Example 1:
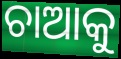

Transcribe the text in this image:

ଚାଆକୁ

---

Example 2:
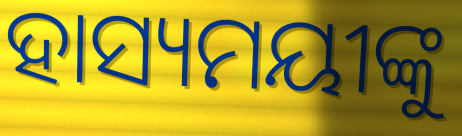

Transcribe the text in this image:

ହାସ୍ୟମୟୀଙ୍କୁ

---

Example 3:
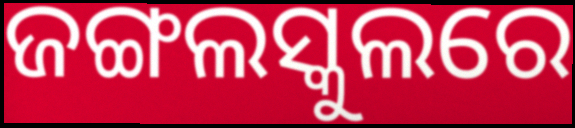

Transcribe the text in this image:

ଜଙ୍ଗଲସ୍କୁଲରେ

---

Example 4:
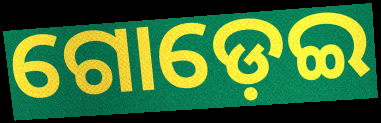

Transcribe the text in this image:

ଗୋଡ଼େଇ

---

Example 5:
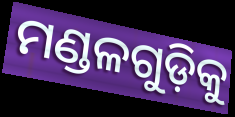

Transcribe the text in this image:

ମଣ୍ଡଳଗୁଡ଼ିକୁ